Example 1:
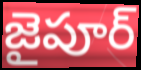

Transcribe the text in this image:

జైపూర్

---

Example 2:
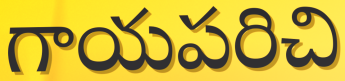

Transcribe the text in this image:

గాయపరిచి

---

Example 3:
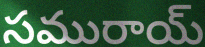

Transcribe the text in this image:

సమురాయ్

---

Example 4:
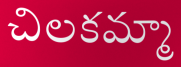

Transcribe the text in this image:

చిలకమ్మా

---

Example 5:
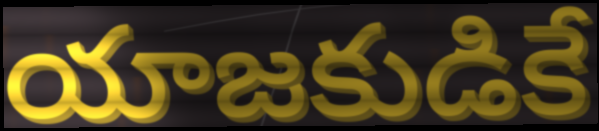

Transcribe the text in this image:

యాజకుడికే